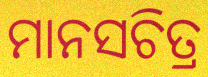
ମାନସଚିତ୍ର